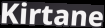
Kirtane